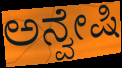
ಅನ್ವೇಷಿ